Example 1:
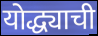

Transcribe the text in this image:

योद्ध्याची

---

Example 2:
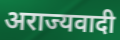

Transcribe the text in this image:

अराज्यवादी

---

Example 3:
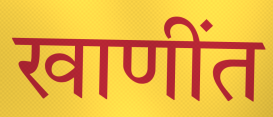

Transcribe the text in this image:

खाणींत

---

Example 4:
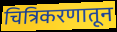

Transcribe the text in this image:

चित्रिकरणातून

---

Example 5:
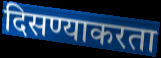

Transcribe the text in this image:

दिसण्याकरता